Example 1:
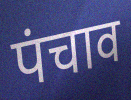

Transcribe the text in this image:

पंचाव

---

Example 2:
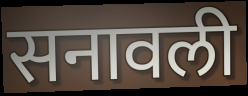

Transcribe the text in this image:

सनावली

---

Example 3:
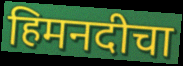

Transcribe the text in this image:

हिमनदीचा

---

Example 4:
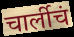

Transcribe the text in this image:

चार्लीचं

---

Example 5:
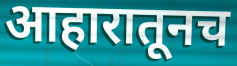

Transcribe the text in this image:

आहारातूनच